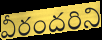
వీరందరిని